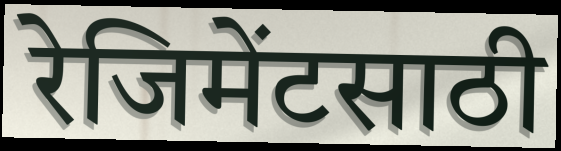
रेजिमेंटसाठी